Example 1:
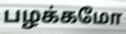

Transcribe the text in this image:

பழக்கமோ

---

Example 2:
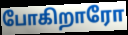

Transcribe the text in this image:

போகிறாரோ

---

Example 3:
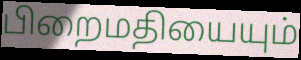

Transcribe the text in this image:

பிறைமதியையும்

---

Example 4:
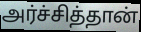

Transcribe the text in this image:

அர்ச்சித்தான்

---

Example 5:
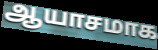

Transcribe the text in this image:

ஆயாசமாக